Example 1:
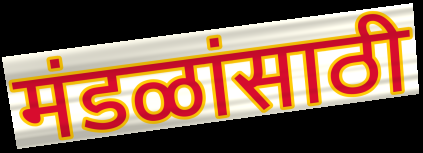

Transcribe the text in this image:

मंडळांसाठी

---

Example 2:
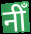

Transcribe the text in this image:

नीँ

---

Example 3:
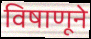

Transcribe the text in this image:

विषाणूने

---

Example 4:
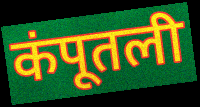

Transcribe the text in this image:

कंपूतली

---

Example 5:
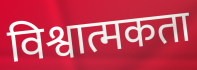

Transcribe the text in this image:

विश्वात्मकता